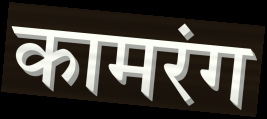
कामरंग